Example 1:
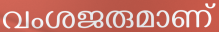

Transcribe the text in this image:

വംശജരുമാണ്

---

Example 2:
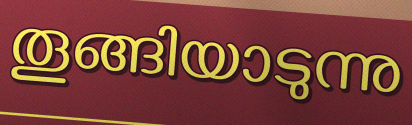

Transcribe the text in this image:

തൂങ്ങിയാടുന്നു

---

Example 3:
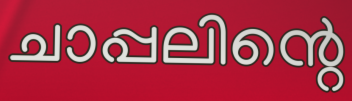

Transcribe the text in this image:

ചാപ്പലിന്റെ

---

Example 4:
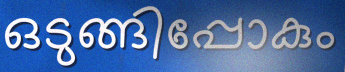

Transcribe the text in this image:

ഒടുങ്ങിപ്പോകും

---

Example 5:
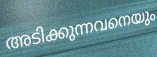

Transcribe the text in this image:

അടിക്കുന്നവനെയും